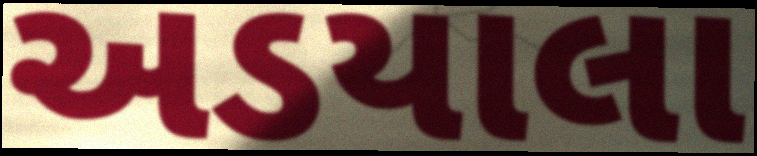
અડયાલા